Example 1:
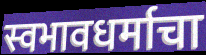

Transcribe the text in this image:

स्वभावधर्माचा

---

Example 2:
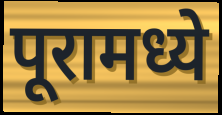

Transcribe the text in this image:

पूरामध्ये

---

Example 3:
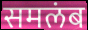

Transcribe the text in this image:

समलंब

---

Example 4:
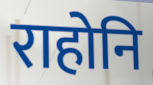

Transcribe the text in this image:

राहोनि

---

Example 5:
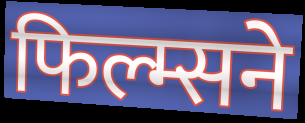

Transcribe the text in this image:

फिल्म्सने